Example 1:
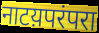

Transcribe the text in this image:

नाटय़परंपरा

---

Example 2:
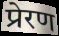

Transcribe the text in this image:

प्रेरण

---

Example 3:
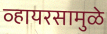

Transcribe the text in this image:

व्हायरसामुळे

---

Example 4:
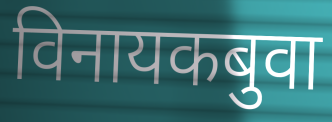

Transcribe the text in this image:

विनायकबुवा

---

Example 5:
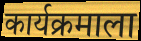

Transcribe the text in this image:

कार्यक्रमाला